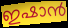
ഇഷാൻ